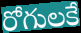
రోగులకే